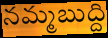
నమ్మబుద్ది